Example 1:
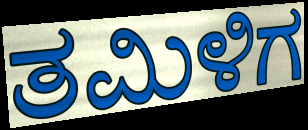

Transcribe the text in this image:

ತಮಿಳಿಗ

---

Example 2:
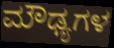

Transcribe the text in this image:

ಮೌಢ್ಯಗಳ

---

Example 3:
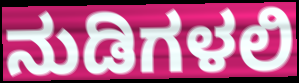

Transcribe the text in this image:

ನುಡಿಗಳಲಿ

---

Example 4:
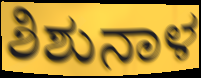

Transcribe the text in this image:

ಶಿಶುನಾಳ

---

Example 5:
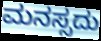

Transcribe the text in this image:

ಮನಸ್ಸದು